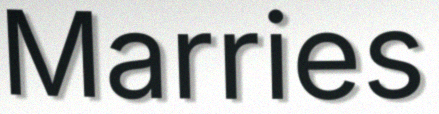
Marries